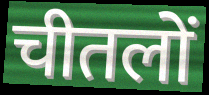
चीतलों